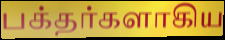
பக்தர்களாகிய